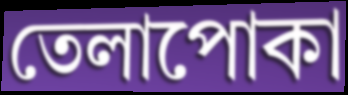
তেলাপোকা